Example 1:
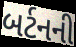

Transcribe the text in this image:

બર્ટનની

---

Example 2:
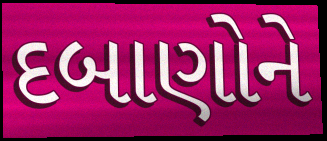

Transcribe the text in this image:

દબાણોને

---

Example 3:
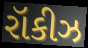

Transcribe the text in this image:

રૉકીઝ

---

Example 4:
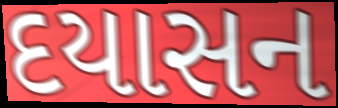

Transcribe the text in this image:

દયાસન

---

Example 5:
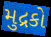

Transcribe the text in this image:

મુદ્રકો